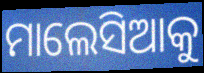
ମାଲେସିଆକୁ